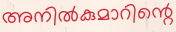
അനിൽകുമാറിന്റെ